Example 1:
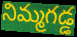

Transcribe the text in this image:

నిమ్మగడ్డ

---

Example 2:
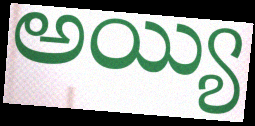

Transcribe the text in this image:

అయ్యి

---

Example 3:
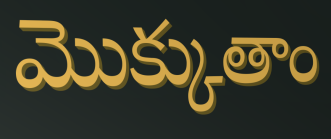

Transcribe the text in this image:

మొక్కుతాం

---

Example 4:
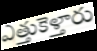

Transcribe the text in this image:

ఎత్తుకెళ్తారు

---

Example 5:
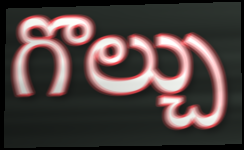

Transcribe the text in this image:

గొల్చు